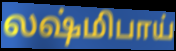
லஷ்மிபாய்